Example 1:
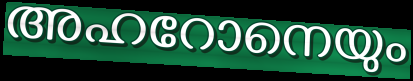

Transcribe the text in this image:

അഹറോനെയും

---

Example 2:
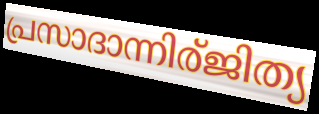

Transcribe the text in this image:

പ്രസാദാന്നിര്ജിത്യ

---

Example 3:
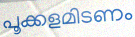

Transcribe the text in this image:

പൂക്കളമിടണം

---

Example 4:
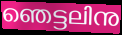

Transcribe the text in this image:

ഞെട്ടലിനു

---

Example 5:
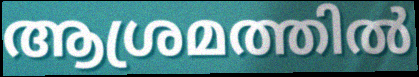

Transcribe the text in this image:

ആശ്രമത്തിൽ